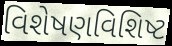
વિશેષણવિશિષ્ટ